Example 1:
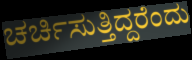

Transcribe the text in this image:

ಚರ್ಚಿಸುತ್ತಿದ್ದರೆಂದು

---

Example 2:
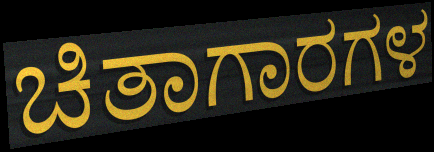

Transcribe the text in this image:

ಚಿತಾಗಾರಗಳ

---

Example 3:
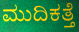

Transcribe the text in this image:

ಮುದಿಕತ್ತೆ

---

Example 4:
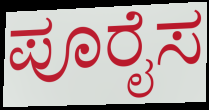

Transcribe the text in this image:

ಪೂರೈಸ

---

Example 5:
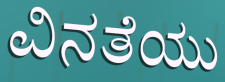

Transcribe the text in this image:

ವಿನತೆಯು